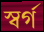
স্বৰ্গ